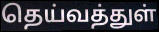
தெய்வத்துள்